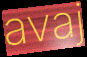
avaj